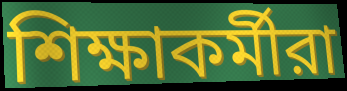
শিক্ষাকর্মীরা